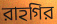
রাহগির